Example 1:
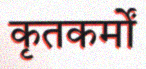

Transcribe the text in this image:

कृतकर्मों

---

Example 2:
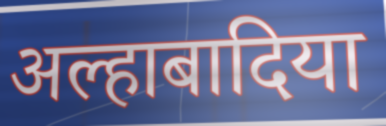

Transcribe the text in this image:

अल्हाबादिया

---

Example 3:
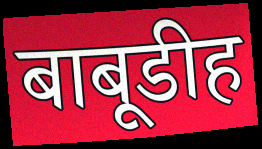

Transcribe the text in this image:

बाबूडीह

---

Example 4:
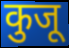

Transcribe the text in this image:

कुजू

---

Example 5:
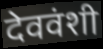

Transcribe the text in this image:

देववंशी